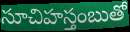
సూచిహస్తంబుతో